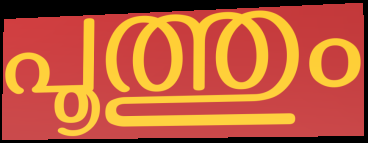
പൂത്തും